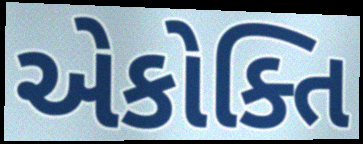
એકોક્તિ